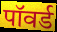
पॉवर्ड